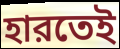
হারতেই